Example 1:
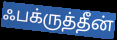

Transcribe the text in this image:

ஃபக்ருத்தீன்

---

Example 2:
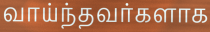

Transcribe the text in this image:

வாய்ந்தவர்களாக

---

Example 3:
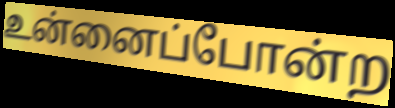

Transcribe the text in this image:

உன்னைப்போன்ற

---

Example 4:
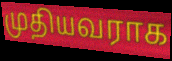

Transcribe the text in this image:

முதியவராக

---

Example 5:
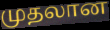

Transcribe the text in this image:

முதலான